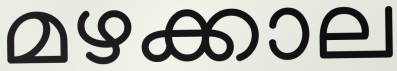
മഴക്കാല